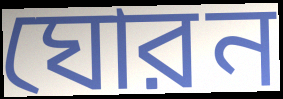
ঘোরন